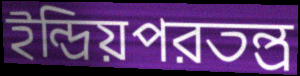
ইন্দ্রিয়পরতন্ত্র